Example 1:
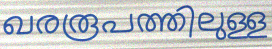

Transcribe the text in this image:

ഖരരൂപത്തിലുള്ള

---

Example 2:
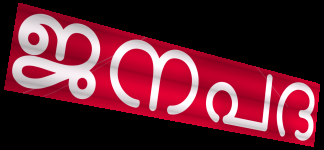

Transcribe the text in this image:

ജനപദ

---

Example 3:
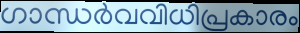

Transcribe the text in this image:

ഗാന്ധർവവിധിപ്രകാരം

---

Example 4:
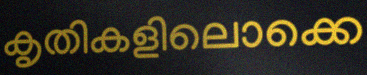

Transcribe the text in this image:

കൃതികളിലൊക്കെ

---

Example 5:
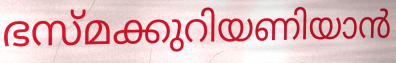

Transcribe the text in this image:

ഭസ്മക്കുറിയണിയാൻ